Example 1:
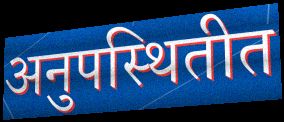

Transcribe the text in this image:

अनुपस्थितीत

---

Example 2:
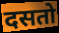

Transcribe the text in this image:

दसतो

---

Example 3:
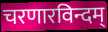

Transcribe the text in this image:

चरणारविन्दम्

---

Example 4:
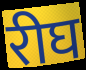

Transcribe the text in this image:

रीघ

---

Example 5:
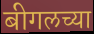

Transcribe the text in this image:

बीगलच्या